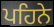
ਪਹਿਨੇ